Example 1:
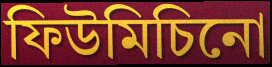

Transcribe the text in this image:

ফিউমিচিনো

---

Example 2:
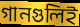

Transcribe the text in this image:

গানগুলিই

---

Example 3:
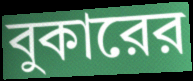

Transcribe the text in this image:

বুকারের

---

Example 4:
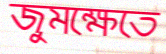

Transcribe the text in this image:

জুমক্ষেতে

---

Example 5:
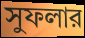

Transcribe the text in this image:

সুফলার